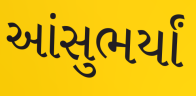
આંસુભર્યાં